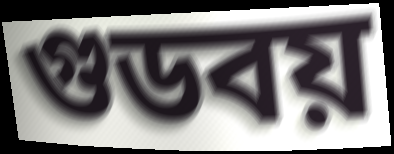
গুডবয়